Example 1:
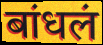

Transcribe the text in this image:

बांधलं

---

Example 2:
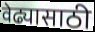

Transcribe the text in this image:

वेढ्यासाठी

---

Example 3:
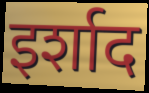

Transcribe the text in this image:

इर्शाद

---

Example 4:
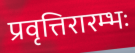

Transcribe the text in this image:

प्रवृत्तिरारम्भः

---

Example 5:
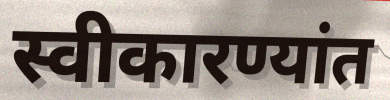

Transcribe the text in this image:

स्वीकारण्यांत